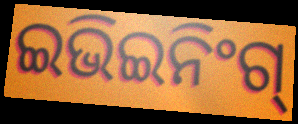
ଇଭିଇନିଂଗ୍